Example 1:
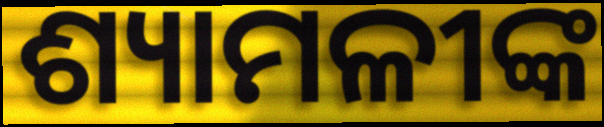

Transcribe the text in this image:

ଶ୍ୟାମଳୀଙ୍କ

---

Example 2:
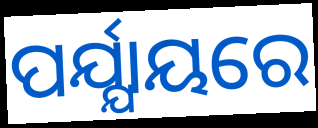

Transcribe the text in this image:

ପର୍ଯ୍ଯାୟରେ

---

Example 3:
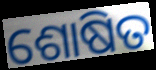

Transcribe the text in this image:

ଶୋଷିତ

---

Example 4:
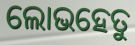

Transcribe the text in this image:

ଲୋଭହେତୁ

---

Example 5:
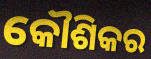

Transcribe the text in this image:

କୌଶିକର